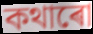
কথাৰো